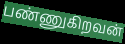
பண்ணுகிறவன்